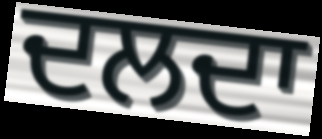
ਦਲਦਾ